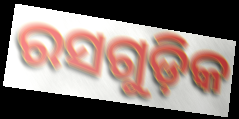
ରସଗୁଡ଼ିକ